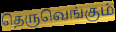
தெருவெங்கும்